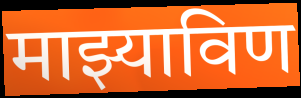
माझ्याविण